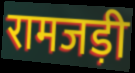
रामजड़ी